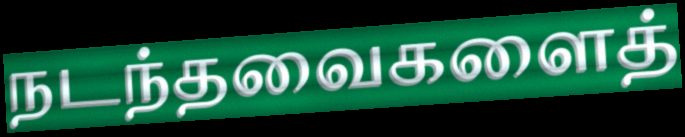
நடந்தவைகளைத்